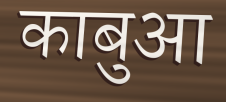
काबुआ